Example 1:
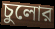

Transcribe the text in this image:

চুলোর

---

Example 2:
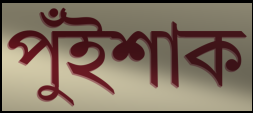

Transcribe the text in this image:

পুঁইশাক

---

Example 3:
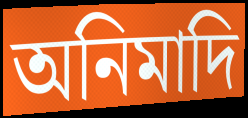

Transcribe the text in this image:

অনিমাদি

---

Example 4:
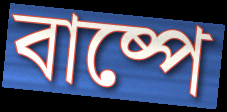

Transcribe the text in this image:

বাষ্পে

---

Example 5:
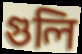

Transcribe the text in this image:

গুলি